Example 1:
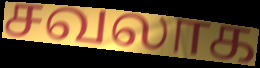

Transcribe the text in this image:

சவலாக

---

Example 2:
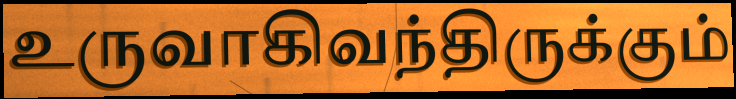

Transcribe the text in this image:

உருவாகிவந்திருக்கும்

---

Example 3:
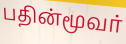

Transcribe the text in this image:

பதின்மூவர்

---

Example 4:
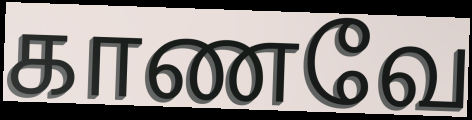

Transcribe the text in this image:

காணவே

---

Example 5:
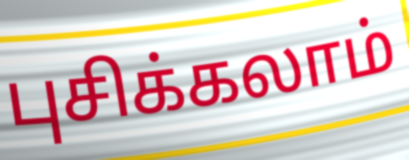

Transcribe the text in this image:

புசிக்கலாம்